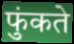
फुंकते